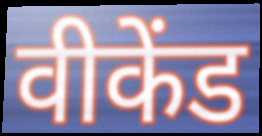
वीकेंड